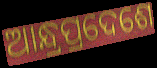
ଆନ୍ଧ୍ରପ୍ରଦେଶେ